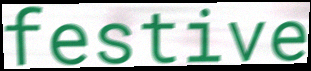
festive